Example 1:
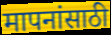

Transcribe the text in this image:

मापनांसाठी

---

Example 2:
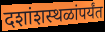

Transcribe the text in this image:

दशांशस्थळांपर्यंत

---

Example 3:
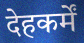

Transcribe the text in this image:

देहकर्में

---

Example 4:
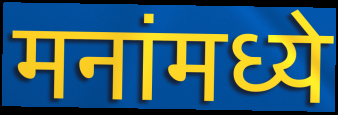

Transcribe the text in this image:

मनांमध्ये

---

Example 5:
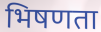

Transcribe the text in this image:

भिषणता